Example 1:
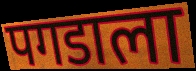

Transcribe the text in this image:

पगडाला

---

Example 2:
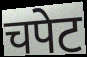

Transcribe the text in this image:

चपेट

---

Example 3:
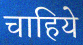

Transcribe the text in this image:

चाहिये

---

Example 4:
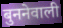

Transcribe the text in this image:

बुननेवाली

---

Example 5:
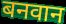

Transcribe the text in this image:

बनवान